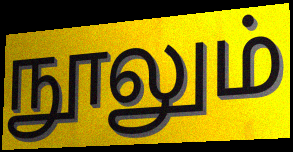
நூலும்